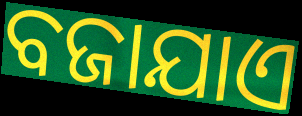
ବଜାଯାଏ